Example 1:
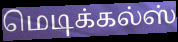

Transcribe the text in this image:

மெடிக்கல்ஸ்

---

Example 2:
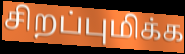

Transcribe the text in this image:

சிறப்புமிக்க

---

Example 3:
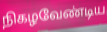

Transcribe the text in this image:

நிகழவேண்டிய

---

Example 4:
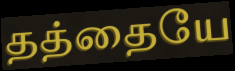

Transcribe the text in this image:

தத்தையே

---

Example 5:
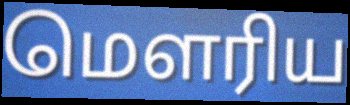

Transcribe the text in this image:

மௌரிய